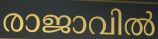
രാജാവിൽ